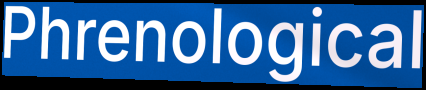
Phrenological